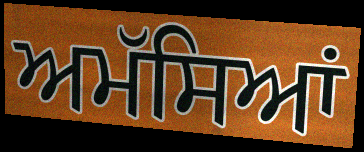
ਅਮੱਸਿਆਂ